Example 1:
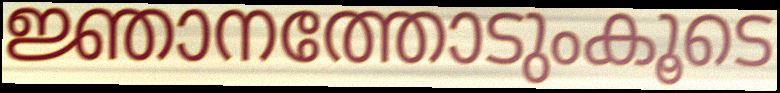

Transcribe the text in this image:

ജ്ഞാനത്തോടുംകൂടെ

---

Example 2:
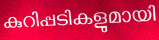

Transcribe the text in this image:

കുറിപ്പടികളുമായി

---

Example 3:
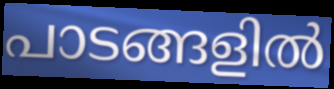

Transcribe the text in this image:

പാടങ്ങളിൽ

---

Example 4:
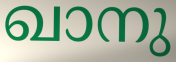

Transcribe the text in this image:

ഖാനു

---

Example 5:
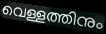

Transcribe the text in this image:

വെള്ളത്തിനും